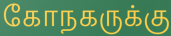
கோநகருக்கு